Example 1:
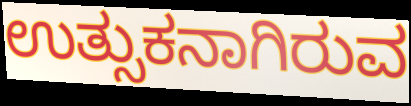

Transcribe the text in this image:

ಉತ್ಸುಕನಾಗಿರುವ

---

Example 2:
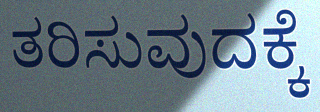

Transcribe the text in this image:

ತರಿಸುವುದಕ್ಕೆ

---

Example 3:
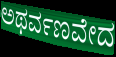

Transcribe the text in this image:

ಅಥರ್ವಣವೇದ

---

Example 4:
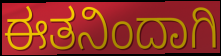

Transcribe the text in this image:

ಈತನಿಂದಾಗಿ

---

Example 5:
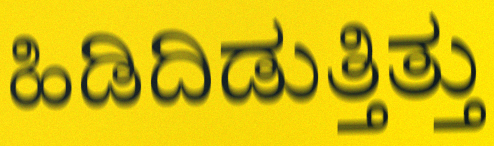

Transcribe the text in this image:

ಹಿಡಿದಿಡುತ್ತಿತ್ತು